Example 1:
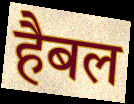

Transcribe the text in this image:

हैबल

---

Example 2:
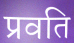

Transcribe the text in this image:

प्रवति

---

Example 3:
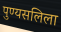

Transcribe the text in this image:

पुण्यसलिला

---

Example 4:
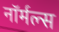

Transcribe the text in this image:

नॉर्मल्स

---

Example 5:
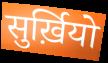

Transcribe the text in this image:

सुर्ख़ियो